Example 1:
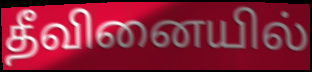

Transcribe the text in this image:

தீவினையில்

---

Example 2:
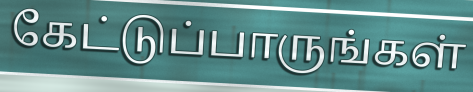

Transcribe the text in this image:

கேட்டுப்பாருங்கள்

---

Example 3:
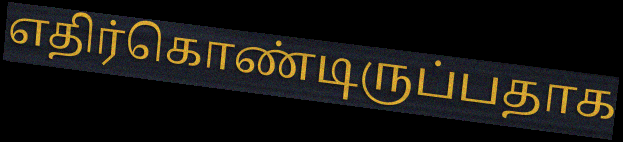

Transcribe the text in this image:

எதிர்கொண்டிருப்பதாக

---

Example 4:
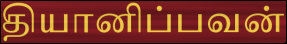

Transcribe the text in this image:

தியானிப்பவன்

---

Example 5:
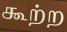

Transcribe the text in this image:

கூற்ற